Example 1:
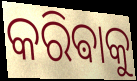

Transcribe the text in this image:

କରିଵାକୁ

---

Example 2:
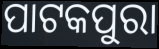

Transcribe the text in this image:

ପାଟକପୁରା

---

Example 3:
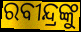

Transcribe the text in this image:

ରବୀନ୍ଦ୍ରଙ୍କୁ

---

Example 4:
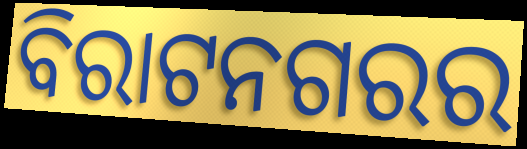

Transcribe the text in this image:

ବିରାଟନଗରର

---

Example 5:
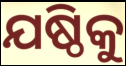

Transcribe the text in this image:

ଯଷ୍ଠିକୁ